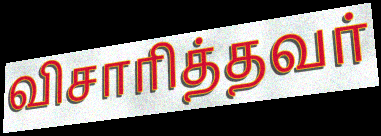
விசாரித்தவர்